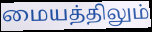
மையத்திலும்